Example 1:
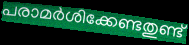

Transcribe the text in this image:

പരാമർശിക്കേണ്ടതുണ്ട്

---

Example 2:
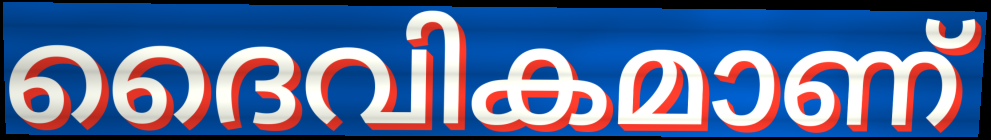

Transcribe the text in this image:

ദൈവികമാണ്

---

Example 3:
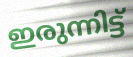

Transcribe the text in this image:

ഇരുന്നിട്ട്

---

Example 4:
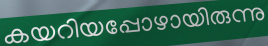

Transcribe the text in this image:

കയറിയപ്പോഴായിരുന്നു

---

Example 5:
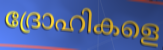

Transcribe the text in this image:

ദ്രോഹികളെ